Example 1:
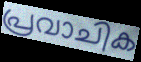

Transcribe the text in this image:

പ്രവാചിക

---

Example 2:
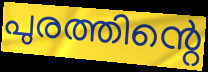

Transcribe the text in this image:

പുരത്തിന്റെ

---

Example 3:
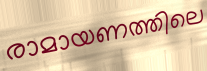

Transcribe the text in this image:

രാമായണത്തിലെ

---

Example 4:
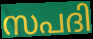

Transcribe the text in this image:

സപദി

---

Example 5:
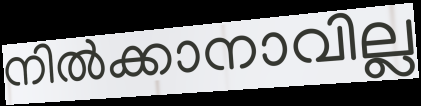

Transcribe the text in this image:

നിൽക്കാനാവില്ല